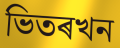
ভিতৰখন